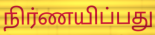
நிர்ணயிப்பது